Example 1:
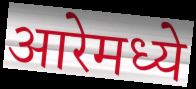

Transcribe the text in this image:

आरेमध्ये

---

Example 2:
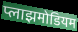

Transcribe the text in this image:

प्लाझमोडियम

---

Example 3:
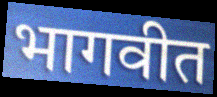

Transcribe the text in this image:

भागवीत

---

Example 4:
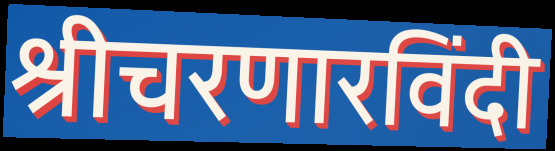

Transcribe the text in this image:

श्रीचरणारविंदी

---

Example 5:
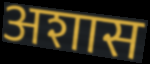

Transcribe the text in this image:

अशास